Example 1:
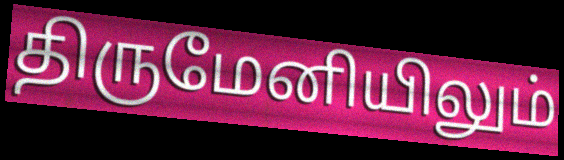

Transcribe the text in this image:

திருமேனியிலும்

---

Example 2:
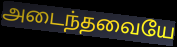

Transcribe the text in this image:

அடைந்தவையே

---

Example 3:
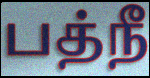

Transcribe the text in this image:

பத்நீ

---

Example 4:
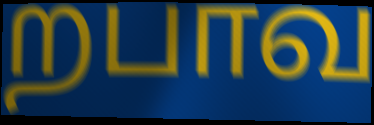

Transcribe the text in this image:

றபாவ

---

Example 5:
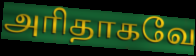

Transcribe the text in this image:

அரிதாகவே